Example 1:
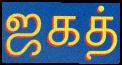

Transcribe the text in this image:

ஜகத்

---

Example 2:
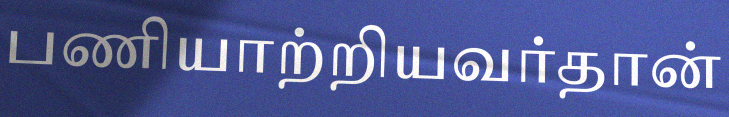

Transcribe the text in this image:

பணியாற்றியவர்தான்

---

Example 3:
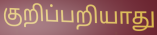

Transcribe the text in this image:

குறிப்பறியாது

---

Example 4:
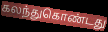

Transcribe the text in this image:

கலந்துகொண்டது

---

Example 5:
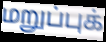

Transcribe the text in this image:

மறுப்புக்